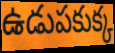
ఉడుపకుక్క